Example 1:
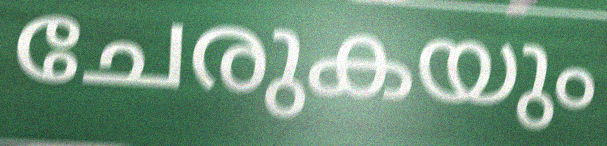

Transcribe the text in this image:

ചേരുകയും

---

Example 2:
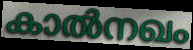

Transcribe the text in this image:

കാൽനഖം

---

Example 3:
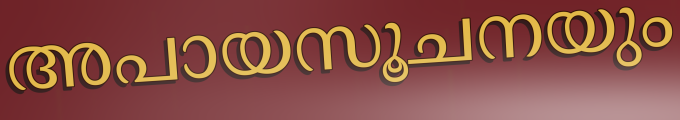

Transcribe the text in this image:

അപായസൂചനയും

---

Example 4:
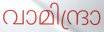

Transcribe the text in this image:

വാമിന്ദ്രാ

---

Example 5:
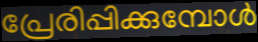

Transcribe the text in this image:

പ്രേരിപ്പിക്കുമ്പോൾ